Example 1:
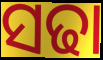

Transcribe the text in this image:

ସଢା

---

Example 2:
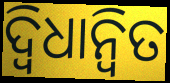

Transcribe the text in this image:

ଦ୍ଵିଧାନ୍ୱିତ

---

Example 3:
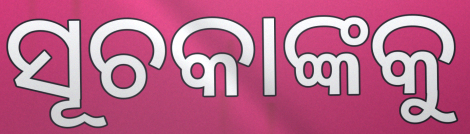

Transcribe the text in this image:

ସୂଚକାଙ୍କକୁ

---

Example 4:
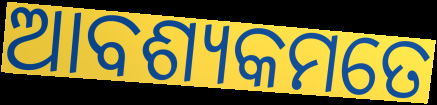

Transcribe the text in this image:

ଆବଶ୍ୟକମତେ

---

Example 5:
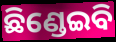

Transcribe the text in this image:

ଛିଣ୍ଡେଇବି